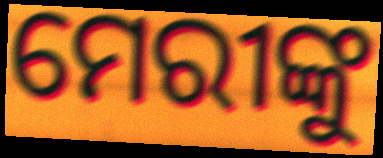
ମେରୀଙ୍କୁ